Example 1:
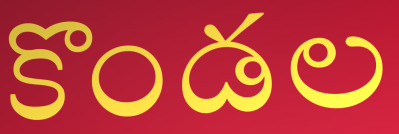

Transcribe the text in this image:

కొండల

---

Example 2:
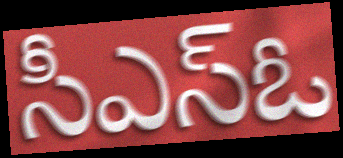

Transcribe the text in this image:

సీఎస్ఓ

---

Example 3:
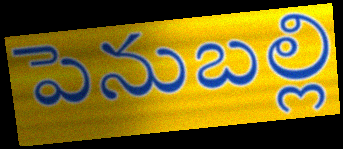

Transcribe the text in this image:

పెనుబల్లి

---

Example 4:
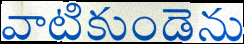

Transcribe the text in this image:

వాటికుండెను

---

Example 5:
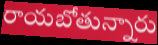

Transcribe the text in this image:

రాయబోతున్నారు